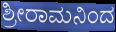
ಶ್ರೀರಾಮನಿಂದ